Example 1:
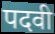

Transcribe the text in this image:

पदवी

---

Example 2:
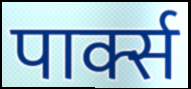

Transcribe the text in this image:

पार्क्स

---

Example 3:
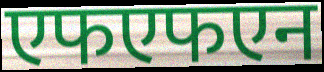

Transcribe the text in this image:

एफएफएन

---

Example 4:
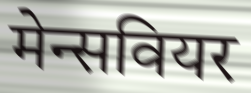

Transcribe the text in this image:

मेन्सवियर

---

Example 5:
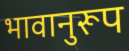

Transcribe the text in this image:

भावानुरूप